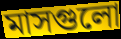
মাসগুলো